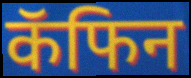
कॅफिन